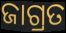
ଜାଗ୍ରତ